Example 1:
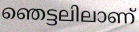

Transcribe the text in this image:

ഞെട്ടലിലാണ്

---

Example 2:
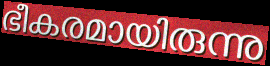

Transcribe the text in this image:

ഭീകരമായിരുന്നു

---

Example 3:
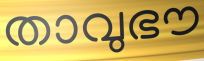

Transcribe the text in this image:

താവുഭൗ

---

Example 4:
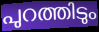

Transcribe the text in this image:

പുറത്തിടും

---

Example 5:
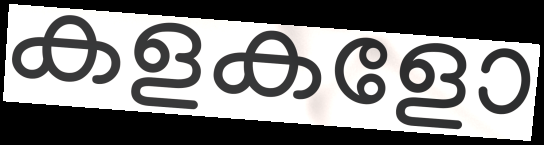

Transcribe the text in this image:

കളകളോ